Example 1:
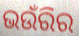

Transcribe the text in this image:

ଭଉଁରିର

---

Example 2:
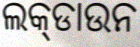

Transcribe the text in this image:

ଲକ୍‍ଡାଉନ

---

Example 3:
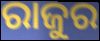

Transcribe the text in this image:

ରାଜୁର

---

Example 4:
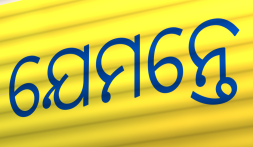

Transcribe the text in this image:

ଯେମନ୍ତେ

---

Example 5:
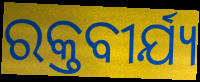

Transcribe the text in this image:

ରକ୍ତବୀର୍ଯ୍ୟ